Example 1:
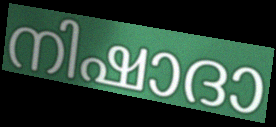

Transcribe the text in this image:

നിഷാദാ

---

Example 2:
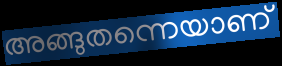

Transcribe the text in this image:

അങ്ങുതന്നെയാണ്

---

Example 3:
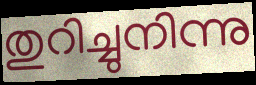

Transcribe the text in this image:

തുറിച്ചുനിന്നു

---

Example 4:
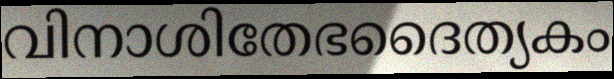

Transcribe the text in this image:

വിനാശിതേഭദൈത്യകം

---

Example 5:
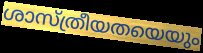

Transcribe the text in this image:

ശാസ്ത്രീയതയെയും